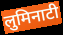
लुमिनाटी